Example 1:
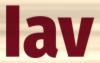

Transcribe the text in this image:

Iav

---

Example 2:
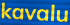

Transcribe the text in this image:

kavalu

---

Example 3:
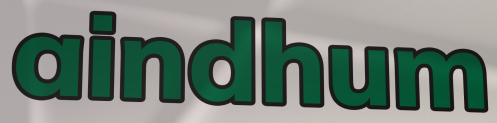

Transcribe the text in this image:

aindhum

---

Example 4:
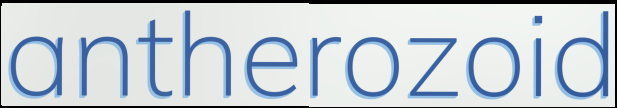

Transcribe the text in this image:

antherozoid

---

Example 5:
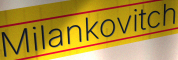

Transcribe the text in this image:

Milankovitch